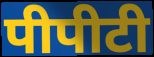
पीपीटी